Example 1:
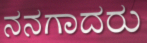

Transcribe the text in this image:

ನನಗಾದರು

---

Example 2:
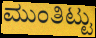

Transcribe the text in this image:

ಮುಂತಿಟ್ಟು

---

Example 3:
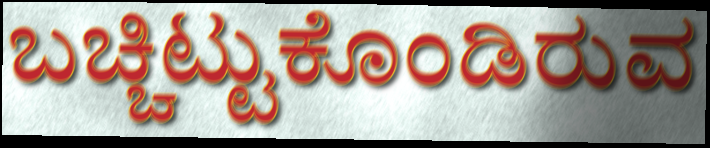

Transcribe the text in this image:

ಬಚ್ಚಿಟ್ಟುಕೊಂಡಿರುವ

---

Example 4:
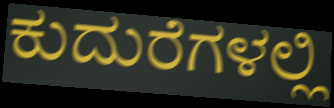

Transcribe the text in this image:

ಕುದುರೆಗಳಲ್ಲಿ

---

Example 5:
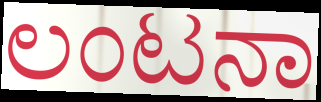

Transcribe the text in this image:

ಲಂಟನಾ